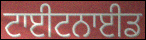
ਟਾਈਟਨਾਈਡ